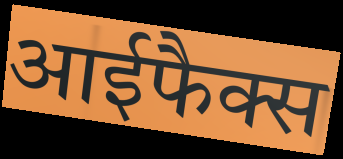
आईफैक्स